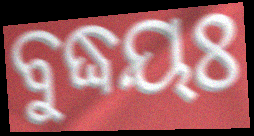
ବୁଦ୍ଧୟଃ